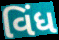
વિંધ